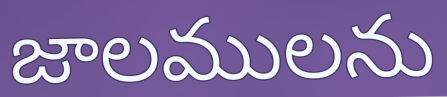
జాలములను